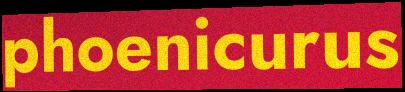
phoenicurus